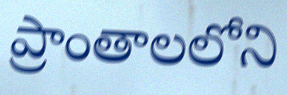
ప్రాంతాలలోని